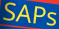
SAPs